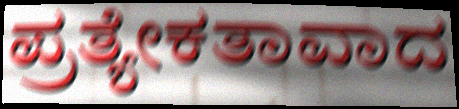
ಪ್ರತ್ಯೇಕತಾವಾದ